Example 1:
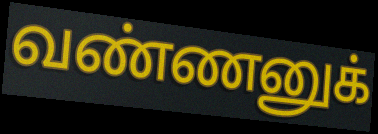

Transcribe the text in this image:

வண்ணனுக்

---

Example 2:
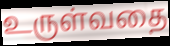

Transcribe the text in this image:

உருள்வதை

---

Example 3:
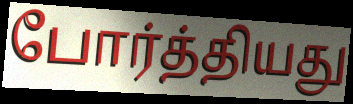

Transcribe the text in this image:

போர்த்தியது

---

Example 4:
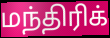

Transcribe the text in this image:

மந்திரிக்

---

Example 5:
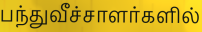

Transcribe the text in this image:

பந்துவீச்சாளர்களில்